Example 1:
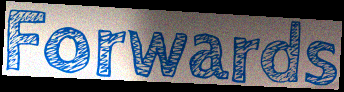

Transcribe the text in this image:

Forwards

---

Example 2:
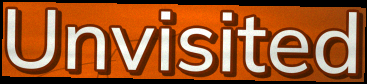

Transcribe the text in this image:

Unvisited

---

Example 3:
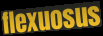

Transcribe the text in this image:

flexuosus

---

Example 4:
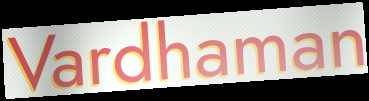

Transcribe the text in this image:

Vardhaman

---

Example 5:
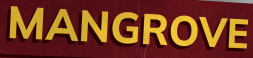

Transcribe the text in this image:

MANGROVE